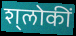
श्लोकीं